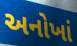
અનોખાં